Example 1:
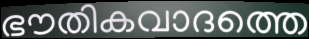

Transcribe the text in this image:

ഭൗതികവാദത്തെ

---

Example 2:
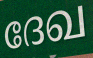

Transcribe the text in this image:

ദേഖ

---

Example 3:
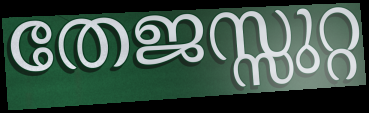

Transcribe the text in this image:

തേജസ്സുറ്റ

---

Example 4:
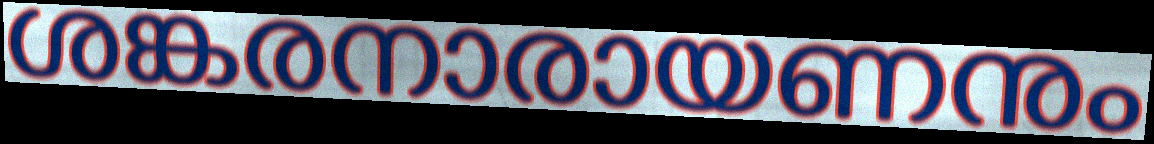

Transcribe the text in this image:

ശങ്കരനാരായണനും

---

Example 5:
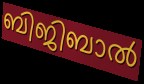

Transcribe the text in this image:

ബിജിബാൽ